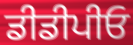
ਡੀਡੀਪੀਓ